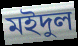
মইদুল